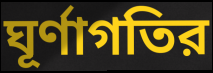
ঘূর্ণাগতির